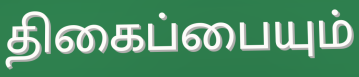
திகைப்பையும்